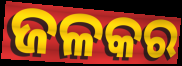
ଜଳକର